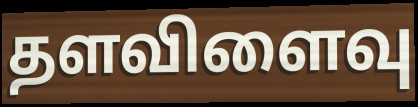
தளவிளைவு